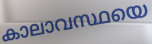
കാലാവസ്ഥയെ